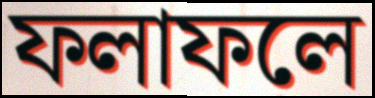
ফলাফলে